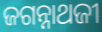
ଜଗନ୍ନାଥଜୀ